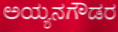
ಅಯ್ಯನಗೌಡರ